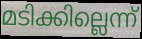
മടിക്കില്ലെന്ന്